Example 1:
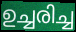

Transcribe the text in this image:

ഉച്ചരിച്ച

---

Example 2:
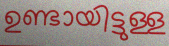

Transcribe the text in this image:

ഉണ്ടായിട്ടുള്ള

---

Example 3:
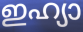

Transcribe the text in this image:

ഇഹ്യാ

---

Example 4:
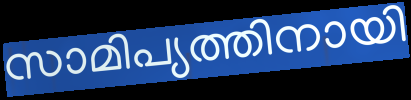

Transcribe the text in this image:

സാമിപ്യത്തിനായി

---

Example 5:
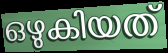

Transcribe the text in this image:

ഒഴുകിയത്